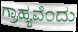
ಗ್ರಾಹ್ಯವೆಂದು